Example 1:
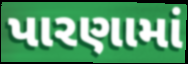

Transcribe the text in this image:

પારણામાં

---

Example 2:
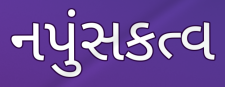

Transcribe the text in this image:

નપુંસકત્વ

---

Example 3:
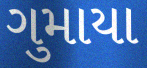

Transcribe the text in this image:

ગુમાયા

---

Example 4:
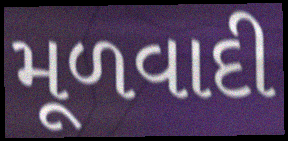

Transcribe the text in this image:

મૂળવાદી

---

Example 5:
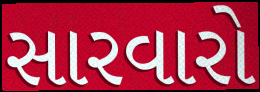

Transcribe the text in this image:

સારવારો